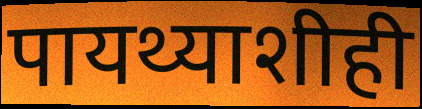
पायथ्याशीही